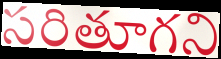
సరితూగని